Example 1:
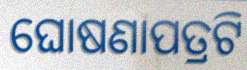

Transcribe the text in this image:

ଘୋଷଣାପତ୍ରଟି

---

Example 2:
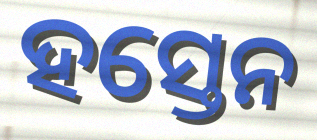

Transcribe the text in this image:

ହସ୍ତେନ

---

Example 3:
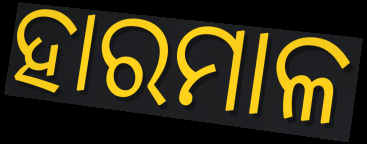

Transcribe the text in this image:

ହାରମାଳ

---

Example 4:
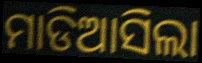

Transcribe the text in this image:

ମାଡିଆସିଲା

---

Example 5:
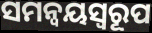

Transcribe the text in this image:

ସମନ୍ୱୟସ୍ୱରୂପ